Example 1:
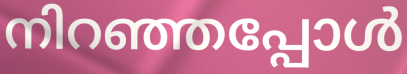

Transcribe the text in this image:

നിറഞ്ഞപ്പോൾ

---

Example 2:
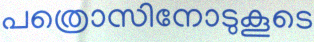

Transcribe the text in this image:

പത്രൊസിനോടുകൂടെ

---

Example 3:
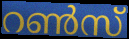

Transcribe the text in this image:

റൺസ്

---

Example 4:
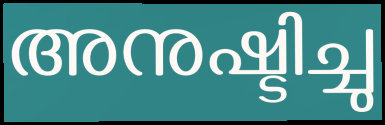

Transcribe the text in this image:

അനുഷ്ടിച്ചു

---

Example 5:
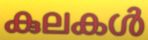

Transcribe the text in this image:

കുലകൾ